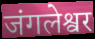
जंगलेश्वर